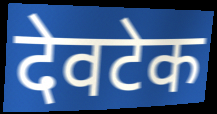
देवटेक